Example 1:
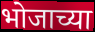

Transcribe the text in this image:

भोजाच्या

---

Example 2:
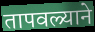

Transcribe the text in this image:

तापवल्याने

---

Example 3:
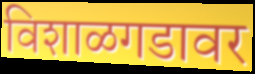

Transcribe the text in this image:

विशाळगडावर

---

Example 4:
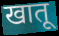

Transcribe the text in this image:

खातू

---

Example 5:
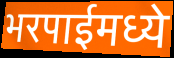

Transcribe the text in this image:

भरपाईमध्ये